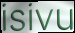
isivu